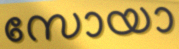
സോയാ